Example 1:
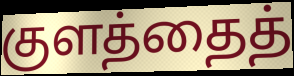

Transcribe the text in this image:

குளத்தைத்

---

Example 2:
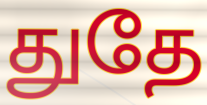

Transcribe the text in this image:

துதே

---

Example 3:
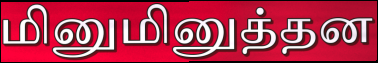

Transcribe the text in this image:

மினுமினுத்தன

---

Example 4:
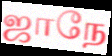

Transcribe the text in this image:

ஜாநே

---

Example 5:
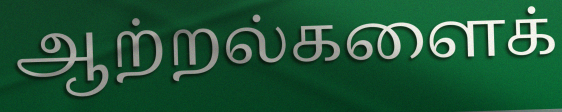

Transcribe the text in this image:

ஆற்றல்களைக்